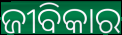
ଜୀବିକାର